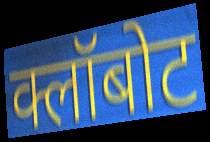
क्लॉबोट